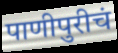
पाणीपुरीचं